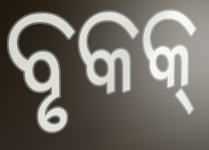
ବୃକକ୍